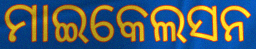
ମାଇକେଲସନ